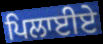
ਪਿਲਾਈਏ